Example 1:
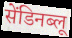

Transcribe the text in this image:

सेंडिनब्लू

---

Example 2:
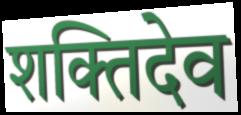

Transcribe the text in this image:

शक्तिदेव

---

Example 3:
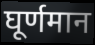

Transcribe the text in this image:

घूर्णमान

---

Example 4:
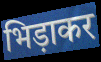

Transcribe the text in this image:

भिड़ाकर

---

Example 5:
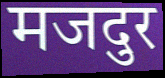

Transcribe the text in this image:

मजदुर